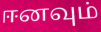
ஈனவும்